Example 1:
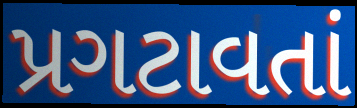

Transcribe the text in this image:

પ્રગટાવતાં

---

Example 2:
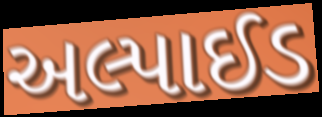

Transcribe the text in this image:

અલ્પાઈડ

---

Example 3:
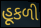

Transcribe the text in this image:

હૂકળી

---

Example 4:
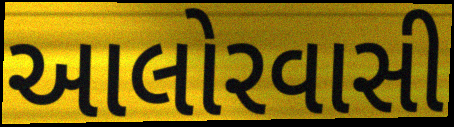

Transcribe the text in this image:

આલોરવાસી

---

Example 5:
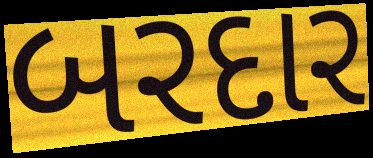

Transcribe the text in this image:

બરદાર